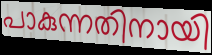
പാകുന്നതിനായി